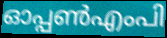
ഓപ്പൺഎംപി